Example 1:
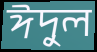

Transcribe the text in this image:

ঈদুল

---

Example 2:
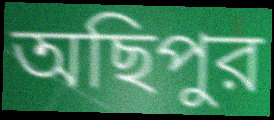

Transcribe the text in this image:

অছিপুর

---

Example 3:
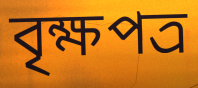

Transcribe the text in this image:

বৃক্ষপত্র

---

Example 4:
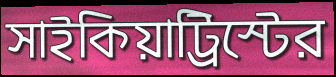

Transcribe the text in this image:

সাইকিয়াট্রিস্টের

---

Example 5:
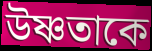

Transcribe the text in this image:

উষ্ণতাকে